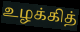
உழக்கித்